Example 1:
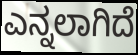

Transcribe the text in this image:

ಎನ್ನಲಾಗಿದೆ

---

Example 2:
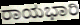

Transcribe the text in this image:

ರಾಯಭಾರಿ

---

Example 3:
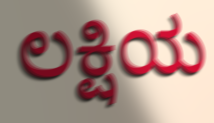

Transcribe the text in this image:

ಲಕ್ಷಿಯ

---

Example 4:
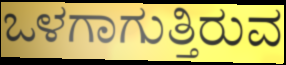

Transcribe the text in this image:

ಒಳಗಾಗುತ್ತಿರುವ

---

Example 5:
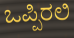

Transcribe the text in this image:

ಒಪ್ಪಿರಲಿ